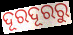
ଦୂରଦୂରରୁ